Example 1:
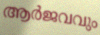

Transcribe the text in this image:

ആർജവവും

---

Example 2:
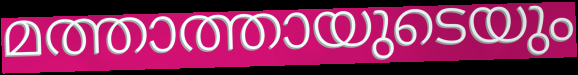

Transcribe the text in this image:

മത്താത്തായുടെയും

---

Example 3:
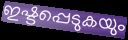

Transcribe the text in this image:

ഇഷ്ടപ്പെടുകയും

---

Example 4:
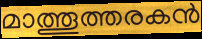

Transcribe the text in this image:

മാത്തൂത്തരകൻ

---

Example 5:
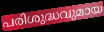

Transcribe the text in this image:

പരിശുദ്ധവുമായ